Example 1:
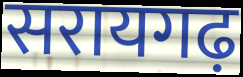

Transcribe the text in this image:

सरायगढ़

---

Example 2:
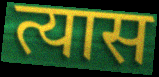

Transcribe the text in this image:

त्यास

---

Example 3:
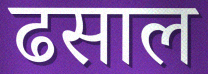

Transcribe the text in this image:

ढसाल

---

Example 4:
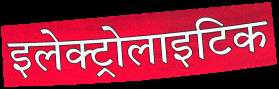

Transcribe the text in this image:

इलेक्ट्रोलाइटिक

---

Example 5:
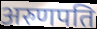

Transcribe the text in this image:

अरुणपति